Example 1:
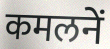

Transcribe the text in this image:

कमलनें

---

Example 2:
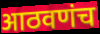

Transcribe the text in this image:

आठवणंच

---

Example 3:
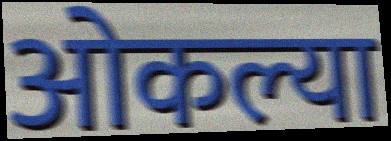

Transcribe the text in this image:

ओकल्या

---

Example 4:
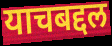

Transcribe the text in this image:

याचबद्दल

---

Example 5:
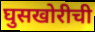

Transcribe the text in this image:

घुसखोरीची